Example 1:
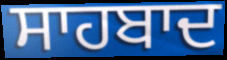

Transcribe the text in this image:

ਸਾਹਬਾਦ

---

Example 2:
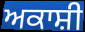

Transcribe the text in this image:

ਅਕਾਸ਼ੀ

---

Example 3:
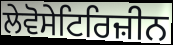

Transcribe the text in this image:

ਲੇਵੋਸੇਟਿਰਿਜ਼ੀਨ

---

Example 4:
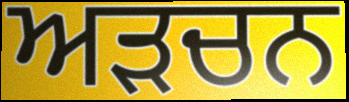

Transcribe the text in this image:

ਅੜਚਨ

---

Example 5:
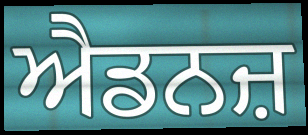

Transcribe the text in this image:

ਐਡਨਜ਼